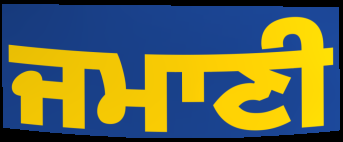
ਜਮਾਣੀ